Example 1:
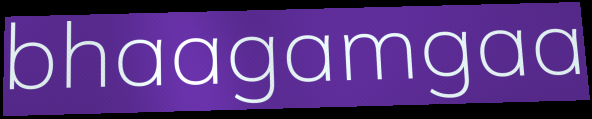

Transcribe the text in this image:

bhaagamgaa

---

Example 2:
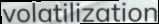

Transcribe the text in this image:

volatilization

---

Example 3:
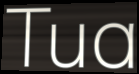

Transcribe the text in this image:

Tua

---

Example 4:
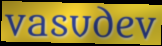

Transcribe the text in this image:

vasudev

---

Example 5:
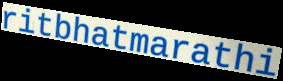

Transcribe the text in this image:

ritbhatmarathi